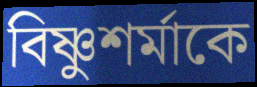
বিষ্ণুশর্মাকে